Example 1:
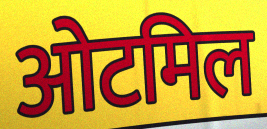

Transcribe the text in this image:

ओटमिल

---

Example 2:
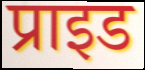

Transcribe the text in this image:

प्राइड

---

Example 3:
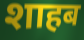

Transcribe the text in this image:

शाहब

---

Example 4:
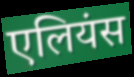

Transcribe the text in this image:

एलियंस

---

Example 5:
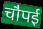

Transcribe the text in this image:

चौपई